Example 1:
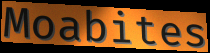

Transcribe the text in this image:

Moabites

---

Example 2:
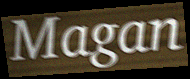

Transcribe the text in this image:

Magan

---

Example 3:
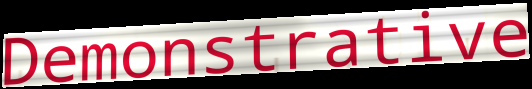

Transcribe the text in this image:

Demonstrative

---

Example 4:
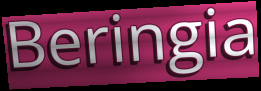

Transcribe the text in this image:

Beringia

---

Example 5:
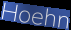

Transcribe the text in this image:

Hoehn